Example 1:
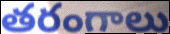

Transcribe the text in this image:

తరంగాలు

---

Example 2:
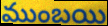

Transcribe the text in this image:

ముంబయి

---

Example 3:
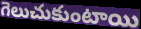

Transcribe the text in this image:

గెలుచుకుంటాయి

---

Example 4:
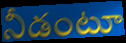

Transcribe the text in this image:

నీడంటూ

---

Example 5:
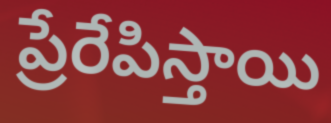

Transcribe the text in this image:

ప్రేరేపిస్తాయి